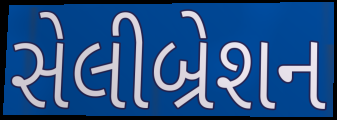
સેલીબ્રેશન